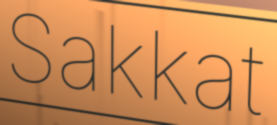
Sakkat